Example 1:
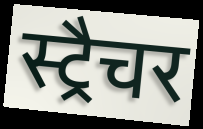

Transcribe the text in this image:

स्ट्रैचर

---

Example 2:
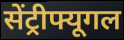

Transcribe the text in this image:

सेंट्रीफ्यूगल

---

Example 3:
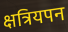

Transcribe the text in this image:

क्षत्रियपन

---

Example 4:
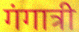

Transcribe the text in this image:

गंगात्री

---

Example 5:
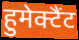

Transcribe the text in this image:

हुमेक्टैंट